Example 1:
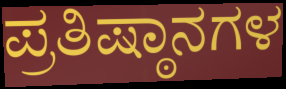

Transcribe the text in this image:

ಪ್ರತಿಷ್ಠಾನಗಳ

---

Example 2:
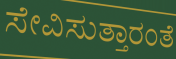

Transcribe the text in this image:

ಸೇವಿಸುತ್ತಾರಂತೆ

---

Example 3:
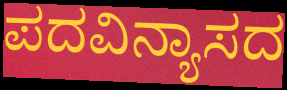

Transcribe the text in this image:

ಪದವಿನ್ಯಾಸದ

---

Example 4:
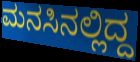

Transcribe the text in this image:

ಮನಸಿನಲ್ಲಿದ್ದ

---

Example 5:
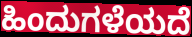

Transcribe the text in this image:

ಹಿಂದುಗಳೆಯದೆ